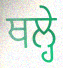
ਥਲ੍ਹੇ